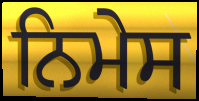
ਨਿਮੇਸ